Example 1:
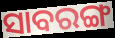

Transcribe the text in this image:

ସାବରଙ୍ଗ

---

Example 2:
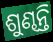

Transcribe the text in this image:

ଶୁଣ୍ଢନ୍ତି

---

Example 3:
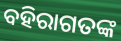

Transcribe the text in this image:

ବହିରାଗତଙ୍କ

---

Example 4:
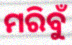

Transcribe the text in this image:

ମରିବୁଁ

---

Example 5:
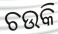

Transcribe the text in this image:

ଚଉକି